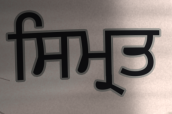
ਸਿਮ੍ਰਤ